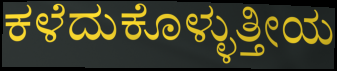
ಕಳೆದುಕೊಳ್ಳುತ್ತೀಯ